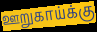
ஊறுகாய்க்கு